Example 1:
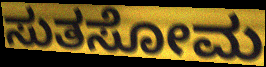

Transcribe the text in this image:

ಸುತಸೋಮ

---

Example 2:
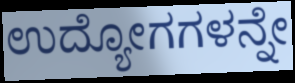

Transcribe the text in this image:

ಉದ್ಯೋಗಗಳನ್ನೇ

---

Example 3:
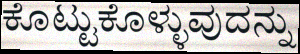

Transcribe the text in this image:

ಕೊಟ್ಟುಕೊಳ್ಳುವುದನ್ನು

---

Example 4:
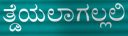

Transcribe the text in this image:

ತ್ಡೆಯಲಾಗಲ್ಲಲಿ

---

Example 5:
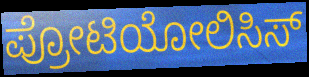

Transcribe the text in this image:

ಪ್ರೋಟಿಯೋಲಿಸಿಸ್